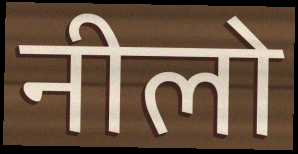
नीलो